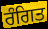
ਰੰਗਿਤ